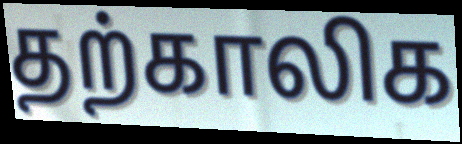
தற்காலிக